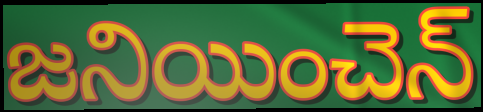
జనియించెన్